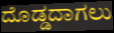
ದೊಡ್ಡದಾಗಲು